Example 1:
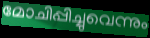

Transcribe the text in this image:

മോചിപ്പിച്ചുവെന്നും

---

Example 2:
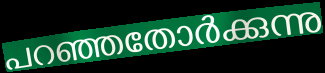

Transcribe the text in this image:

പറഞ്ഞതോർക്കുന്നു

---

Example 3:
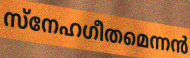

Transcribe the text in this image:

സ്നേഹഗീതമെന്നൻ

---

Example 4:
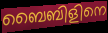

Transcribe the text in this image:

ബൈബിളിനെ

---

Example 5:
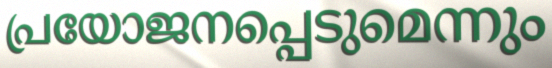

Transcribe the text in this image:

പ്രയോജനപ്പെടുമെന്നും